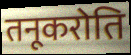
तनूकरोति